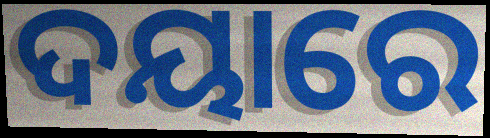
ଦୟାରେ